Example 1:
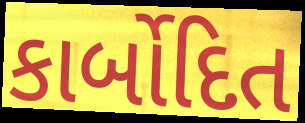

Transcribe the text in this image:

કાર્બોદિત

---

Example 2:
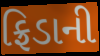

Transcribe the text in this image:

ફ્રિડાની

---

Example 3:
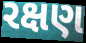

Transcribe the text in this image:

રક્ષણ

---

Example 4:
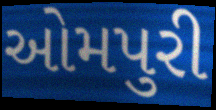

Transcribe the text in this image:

ઓમપુરી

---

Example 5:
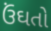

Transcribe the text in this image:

ઉંઘતો